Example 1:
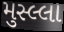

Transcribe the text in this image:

મુસ્લ્લા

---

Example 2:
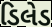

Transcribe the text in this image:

ડિલેડ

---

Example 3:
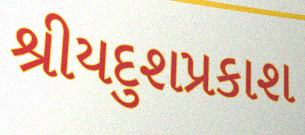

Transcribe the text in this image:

શ્રીયદુશપ્રકાશ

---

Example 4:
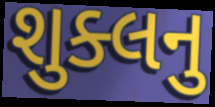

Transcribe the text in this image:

શુક્લનુ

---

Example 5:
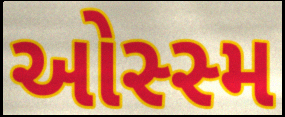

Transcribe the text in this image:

ઓસ્સ્મ